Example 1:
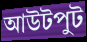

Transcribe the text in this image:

আউটপুট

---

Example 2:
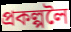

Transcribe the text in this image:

প্ৰকল্পলৈ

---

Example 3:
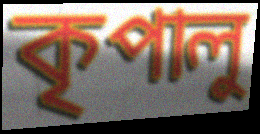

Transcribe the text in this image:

কৃপালু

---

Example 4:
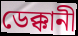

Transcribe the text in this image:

ডেক্কানী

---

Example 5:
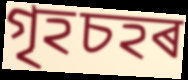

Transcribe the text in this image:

গৃহচহৰ